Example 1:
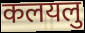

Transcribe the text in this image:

कलयलु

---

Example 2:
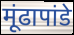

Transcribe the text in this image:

मूंढापांडे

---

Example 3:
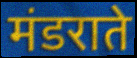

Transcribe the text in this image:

मंडराते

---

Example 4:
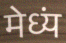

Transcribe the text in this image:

मेध्यं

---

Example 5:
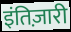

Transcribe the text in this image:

इंतिज़ारी